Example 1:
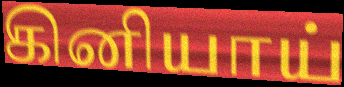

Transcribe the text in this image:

கினியாய்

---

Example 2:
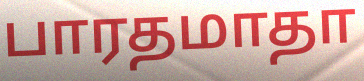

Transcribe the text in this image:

பாரதமாதா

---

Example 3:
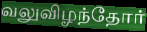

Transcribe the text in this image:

வலுவிழந்தோர்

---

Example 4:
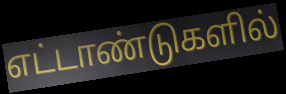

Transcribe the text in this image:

எட்டாண்டுகளில்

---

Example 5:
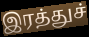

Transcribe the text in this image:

இரத்துச்